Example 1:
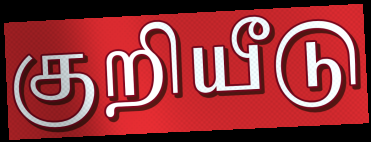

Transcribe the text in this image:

குறியீடு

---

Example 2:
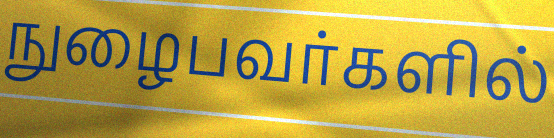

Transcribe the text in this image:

நுழைபவர்களில்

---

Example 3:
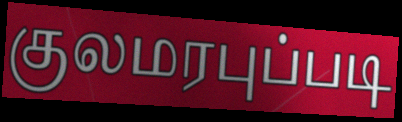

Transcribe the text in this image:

குலமரபுப்படி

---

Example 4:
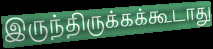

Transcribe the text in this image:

இருந்திருக்கக்கூடாது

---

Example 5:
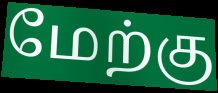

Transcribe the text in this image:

மேற்கு